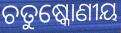
ଚତୁଷ୍କୋଣୀୟ